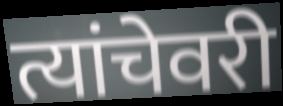
त्यांचेवरी